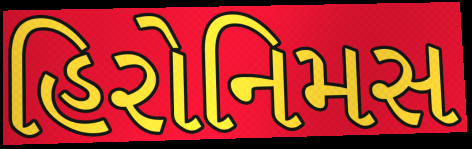
હિરોનિમસ